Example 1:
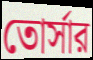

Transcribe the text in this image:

তোর্সার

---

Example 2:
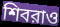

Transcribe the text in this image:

শিবরাও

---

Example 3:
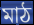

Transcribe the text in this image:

মাঠ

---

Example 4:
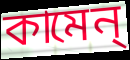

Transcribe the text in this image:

কামেন্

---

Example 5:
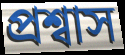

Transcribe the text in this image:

প্রশ্বাস